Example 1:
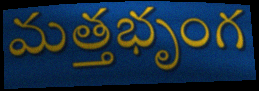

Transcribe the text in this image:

మత్తభృంగ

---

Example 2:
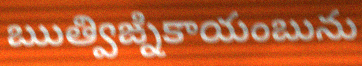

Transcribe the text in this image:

ఋత్విఙ్నికాయంబును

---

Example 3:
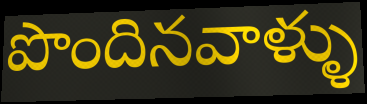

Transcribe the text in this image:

పొందినవాళ్ళు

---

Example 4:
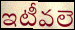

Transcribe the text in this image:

ఇటీవలె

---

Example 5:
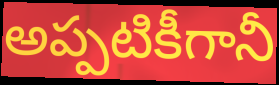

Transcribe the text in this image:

అప్పటికీగానీ